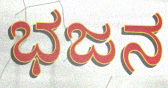
ಭಜನ